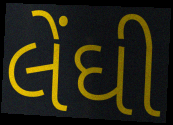
લેંઘી